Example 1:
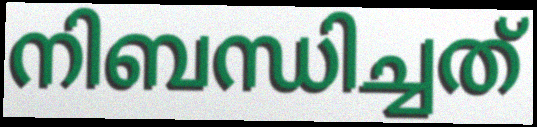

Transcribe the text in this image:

നിബന്ധിച്ചത്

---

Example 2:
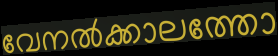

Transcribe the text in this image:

വേനൽക്കാലത്തോ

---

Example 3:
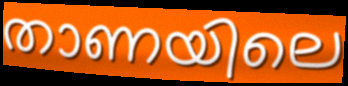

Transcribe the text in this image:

താണയിലെ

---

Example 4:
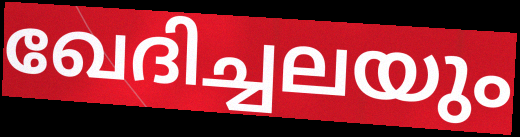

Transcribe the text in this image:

ഖേദിച്ചലയും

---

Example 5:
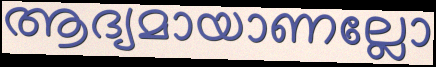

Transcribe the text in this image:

ആദ്യമായാണല്ലോ